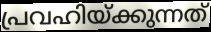
പ്രവഹിയ്ക്കുന്നത്